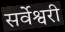
सर्वेश्वरी